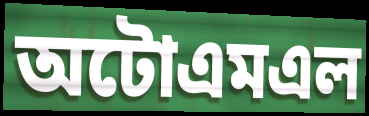
অটোএমএল